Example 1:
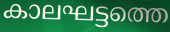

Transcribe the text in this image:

കാലഘട്ടത്തെ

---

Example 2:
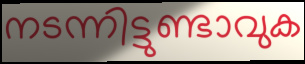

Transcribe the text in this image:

നടന്നിട്ടുണ്ടാവുക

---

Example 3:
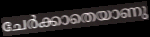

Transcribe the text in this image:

ചേർക്കാതെയാണു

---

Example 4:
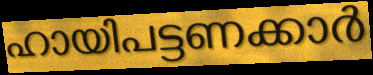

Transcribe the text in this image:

ഹായിപട്ടണക്കാർ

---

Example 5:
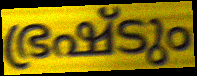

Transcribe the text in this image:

ഭ്രഷ്ടും